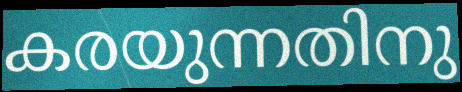
കരയുന്നതിനു